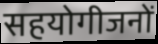
सहयोगीजनों